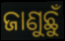
ଜାଣୁଛୁଁ